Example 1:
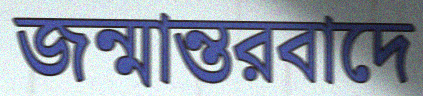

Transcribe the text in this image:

জন্মান্তরবাদে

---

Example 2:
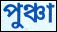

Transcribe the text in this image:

পুঞ্চা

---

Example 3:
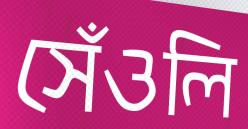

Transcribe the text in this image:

সেঁওলি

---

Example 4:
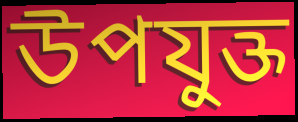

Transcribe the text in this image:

উপযুক্ত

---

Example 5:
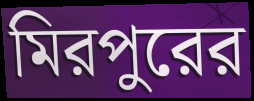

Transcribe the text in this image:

মিরপুরের